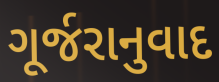
ગૂર્જરાનુવાદ